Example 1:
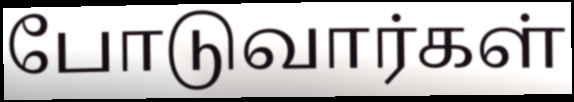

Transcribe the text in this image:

போடுவார்கள்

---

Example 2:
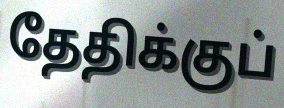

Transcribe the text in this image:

தேதிக்குப்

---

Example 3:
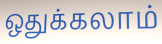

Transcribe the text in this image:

ஒதுக்கலாம்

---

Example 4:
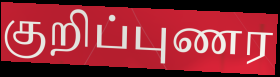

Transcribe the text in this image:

குறிப்புணர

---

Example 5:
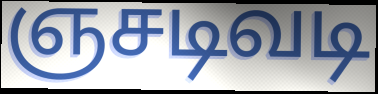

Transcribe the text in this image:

ஞசடிவடி